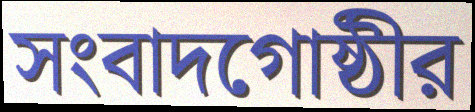
সংবাদগোষ্ঠীর